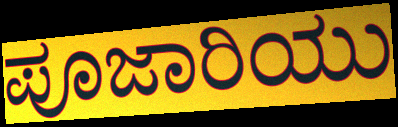
ಪೂಜಾರಿಯು